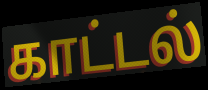
காட்டல்